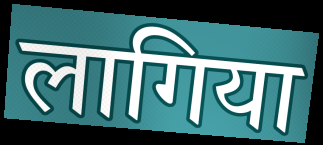
लागिया